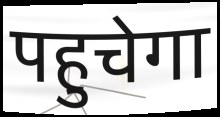
पहुचेगा